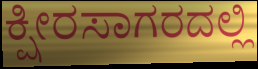
ಕ್ಷೀರಸಾಗರದಲ್ಲಿ